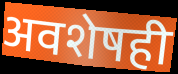
अवशेषही